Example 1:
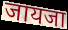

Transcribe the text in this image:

जायजा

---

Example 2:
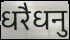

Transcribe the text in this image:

धरैधनु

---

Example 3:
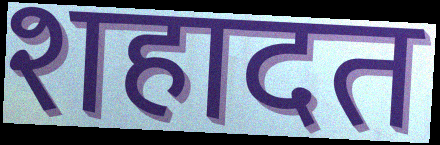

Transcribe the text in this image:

शहादत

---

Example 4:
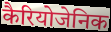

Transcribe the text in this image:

कैरियोजेनिक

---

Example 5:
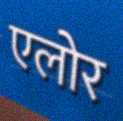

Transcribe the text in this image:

एलोर